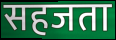
सहजता